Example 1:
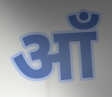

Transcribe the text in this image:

आँ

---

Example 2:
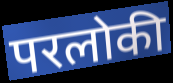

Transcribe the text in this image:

परलोकी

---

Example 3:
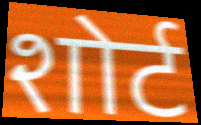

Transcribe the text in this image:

शोर्ट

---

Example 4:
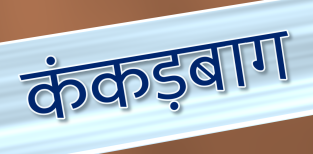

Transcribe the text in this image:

कंकड़बाग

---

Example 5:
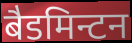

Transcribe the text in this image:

बैडमिन्टन